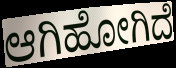
ಆಗಿಹೋಗಿದೆ